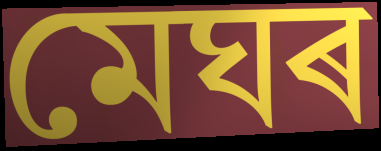
মেঘৰ